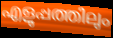
എളുപ്പത്തിലും